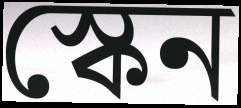
স্কেন